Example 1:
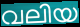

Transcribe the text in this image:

വലിയ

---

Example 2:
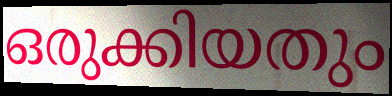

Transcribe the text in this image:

ഒരുക്കിയതും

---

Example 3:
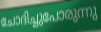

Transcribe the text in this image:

ചോദിച്ചുപോരുന്നു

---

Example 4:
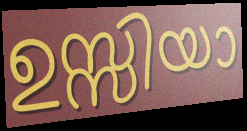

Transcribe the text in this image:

ഉസ്സിയാ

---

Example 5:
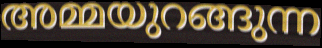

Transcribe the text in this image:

അമ്മയുറങ്ങുന്ന